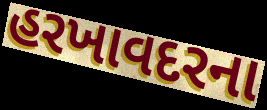
હરખાવદરના